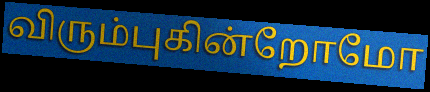
விரும்புகின்றோமோ